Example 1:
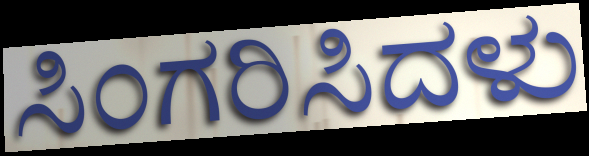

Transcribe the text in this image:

ಸಿಂಗರಿಸಿದಳು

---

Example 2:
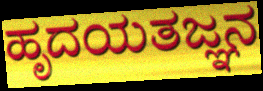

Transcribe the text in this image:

ಹೃದಯತಜ್ಞನ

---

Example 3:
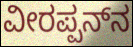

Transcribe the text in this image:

ವೀರಪ್ಪನ್‍ನ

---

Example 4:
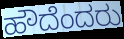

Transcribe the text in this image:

ಹೌದೆಂದರು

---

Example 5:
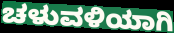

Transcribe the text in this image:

ಚಳುವಳಿಯಾಗಿ